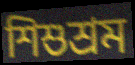
শিশুশ্রম